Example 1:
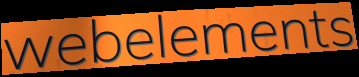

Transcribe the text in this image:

webelements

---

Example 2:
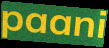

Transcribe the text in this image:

paani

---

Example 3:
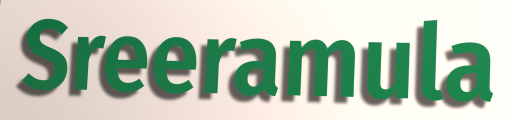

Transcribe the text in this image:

Sreeramula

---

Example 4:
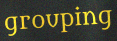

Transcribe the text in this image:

grouping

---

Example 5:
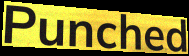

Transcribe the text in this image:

Punched